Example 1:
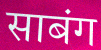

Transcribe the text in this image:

साबंग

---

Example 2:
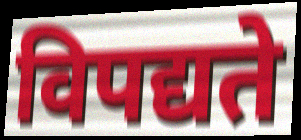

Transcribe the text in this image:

विपद्यते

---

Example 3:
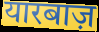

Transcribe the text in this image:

यारबाज़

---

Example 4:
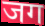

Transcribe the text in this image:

जग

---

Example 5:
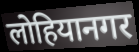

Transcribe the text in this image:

लोहियानगर